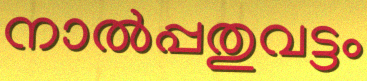
നാൽപ്പതുവട്ടം